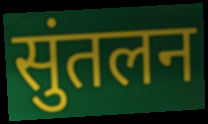
सुंतलन